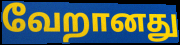
வேறானது